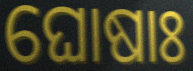
ଘୋଷାଃ